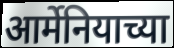
आर्मेनियाच्या